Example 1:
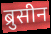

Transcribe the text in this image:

ब्रुसीन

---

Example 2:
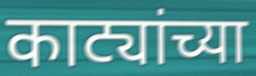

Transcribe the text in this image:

काट्यांच्या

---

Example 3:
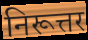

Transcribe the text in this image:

निरूत्तर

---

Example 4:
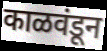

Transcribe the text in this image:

काळवंडून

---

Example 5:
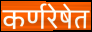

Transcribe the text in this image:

कर्णरेषेत